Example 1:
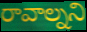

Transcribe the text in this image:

రావాల్నని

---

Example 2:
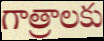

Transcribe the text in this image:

గాత్రాలకు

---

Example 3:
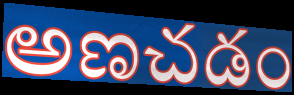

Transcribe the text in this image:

అణచడం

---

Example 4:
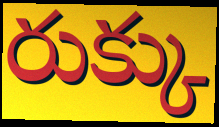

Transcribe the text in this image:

రుక్కు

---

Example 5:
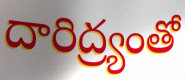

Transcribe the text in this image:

దారిద్ర్యంతో